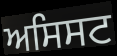
ਅਸਿਸਟ